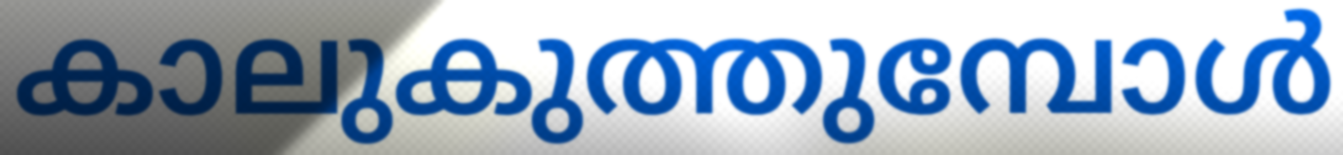
കാലുകുത്തുമ്പോൾ